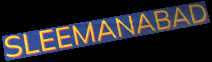
SLEEMANABAD